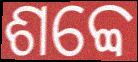
ଶବ୍ବେ